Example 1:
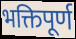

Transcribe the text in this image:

भक्तिपूर्ण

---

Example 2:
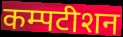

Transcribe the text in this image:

कम्पटीशन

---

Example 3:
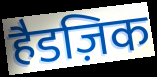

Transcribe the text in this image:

हैडज़िक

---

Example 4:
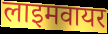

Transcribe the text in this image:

लाइमवायर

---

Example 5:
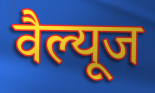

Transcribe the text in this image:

वैल्यूज